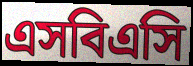
এসবিএসি